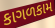
કાગળકામ